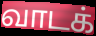
வாடக்